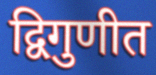
द्विगुणीत